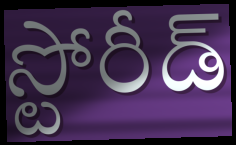
స్టోరీడ్